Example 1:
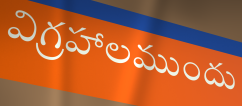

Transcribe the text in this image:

విగ్రహాలముందు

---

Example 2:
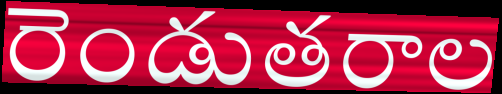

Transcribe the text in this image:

రెండుతరాల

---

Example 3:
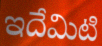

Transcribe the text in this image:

ఇదేమిటి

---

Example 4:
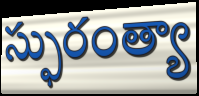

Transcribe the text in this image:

స్ఫురంత్యా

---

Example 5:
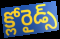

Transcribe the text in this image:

క్లోరైడ్స్